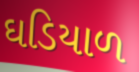
ઘડિયાળ